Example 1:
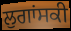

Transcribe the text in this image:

ਲੁਗਾਂਸਕੀ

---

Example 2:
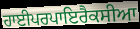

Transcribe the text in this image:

ਹਾਈਪਰਪਾਇਰੈਕਸੀਆ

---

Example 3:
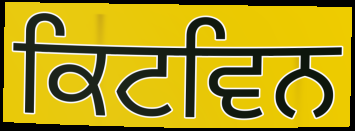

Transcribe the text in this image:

ਕਿਟਵਿਨ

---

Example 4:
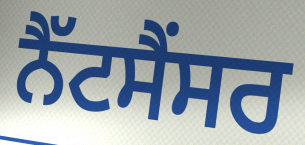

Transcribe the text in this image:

ਨੈੱਟਸੈਂਸਰ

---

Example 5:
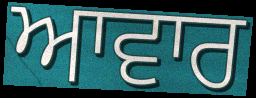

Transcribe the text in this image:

ਆਵਾਰ